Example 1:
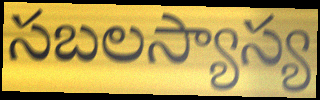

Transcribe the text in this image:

సబలస్యాస్య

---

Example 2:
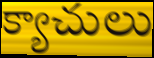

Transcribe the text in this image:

క్యాచులు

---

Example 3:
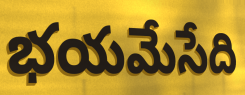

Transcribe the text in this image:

భయమేసేది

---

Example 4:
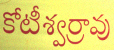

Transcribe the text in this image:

కోటీశ్వర్రావు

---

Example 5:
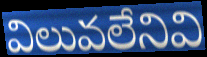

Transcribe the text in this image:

విలువలేనివి